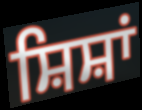
ਸ਼ਿਸ਼ਾਂ